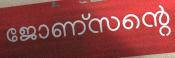
ജോണ്സന്റെ